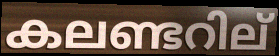
കലണ്ടറില്